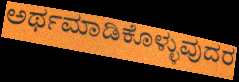
ಅರ್ಥಮಾಡಿಕೊಳ್ಳುವುದರ